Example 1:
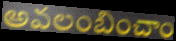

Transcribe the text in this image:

అవలంబించాం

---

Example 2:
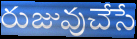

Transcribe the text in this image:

రుజువుచేసే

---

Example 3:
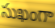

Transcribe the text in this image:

సుఖంగా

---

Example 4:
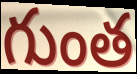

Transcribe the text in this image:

గుంత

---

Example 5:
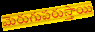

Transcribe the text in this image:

మెరుగుపరుస్తాయి